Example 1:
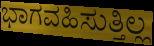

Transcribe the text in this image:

ಭಾಗವಹಿಸುತ್ತಿಲ್ಲ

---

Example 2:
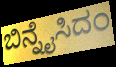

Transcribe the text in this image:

ಬಿನ್ನೈಸಿದಂ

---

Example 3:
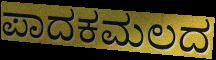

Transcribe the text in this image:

ಪಾದಕಮಲದ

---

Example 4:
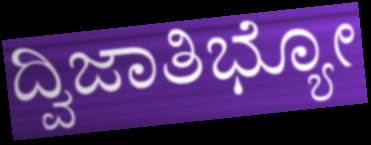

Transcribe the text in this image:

ದ್ವಿಜಾತಿಭ್ಯೋ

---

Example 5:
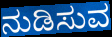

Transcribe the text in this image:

ನುಡಿಸುವ